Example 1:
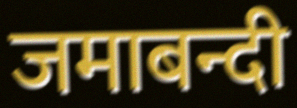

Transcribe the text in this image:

जमाबन्दी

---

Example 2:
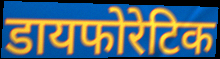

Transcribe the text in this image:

डायफोरेटिक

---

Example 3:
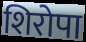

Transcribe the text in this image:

शिरोपा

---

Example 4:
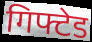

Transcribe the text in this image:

गिफ्टेड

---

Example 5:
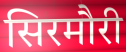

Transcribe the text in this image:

सिरमौरी